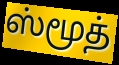
ஸ்மூத்